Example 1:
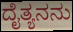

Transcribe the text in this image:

ದೈತ್ಯನನು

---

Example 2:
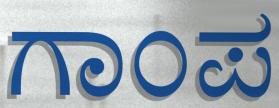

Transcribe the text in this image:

ಗಾಂಪ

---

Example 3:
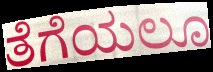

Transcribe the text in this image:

ತೆಗೆಯಲೂ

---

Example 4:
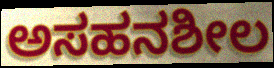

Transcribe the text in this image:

ಅಸಹನಶೀಲ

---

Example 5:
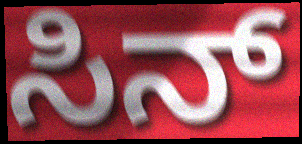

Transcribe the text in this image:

ಸಿನ್